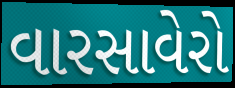
વારસાવેરો